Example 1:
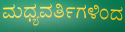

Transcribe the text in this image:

ಮಧ್ಯವರ್ತಿಗಳಿಂದ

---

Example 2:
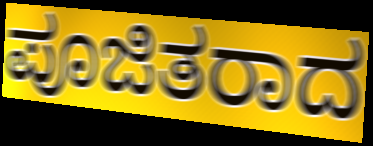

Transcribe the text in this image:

ಪೂಜಿತರಾದ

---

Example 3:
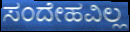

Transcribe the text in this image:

ಸಂದೇಹವಿಲ್ಲ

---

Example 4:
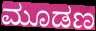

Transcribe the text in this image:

ಮೂಡಣ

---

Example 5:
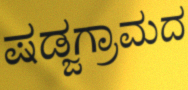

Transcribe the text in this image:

ಷಡ್ಜಗ್ರಾಮದ